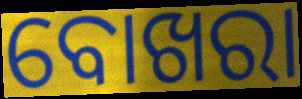
ବୋଖରା